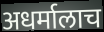
अधर्मालाच